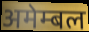
अमेम्बल